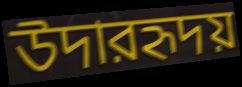
উদারহৃদয়